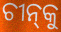
ଚୀନ୍‌କୁ